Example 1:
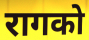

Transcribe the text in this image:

रागको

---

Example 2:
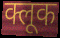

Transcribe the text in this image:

क्लूक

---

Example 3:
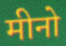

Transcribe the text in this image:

मीनो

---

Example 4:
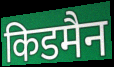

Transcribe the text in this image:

किडमैन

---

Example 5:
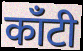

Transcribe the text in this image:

काँटी